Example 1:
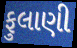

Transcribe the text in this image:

ફુલાણી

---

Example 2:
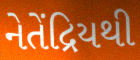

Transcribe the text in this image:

નેતેંદ્રિયથી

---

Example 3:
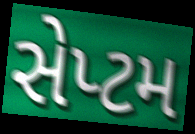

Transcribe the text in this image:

સેપ્ટમ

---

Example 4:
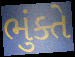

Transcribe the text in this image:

ભુંક્તે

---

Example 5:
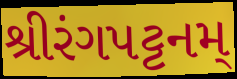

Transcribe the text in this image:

શ્રીરંગપટ્ટનમ્